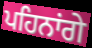
ਪਹਿਨਾਂਗੇ